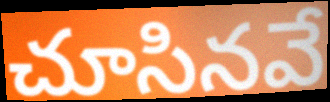
చూసినవే